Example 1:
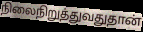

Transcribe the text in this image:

நிலைநிறுத்துவதுதான்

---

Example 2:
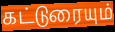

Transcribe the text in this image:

கட்டுரையும்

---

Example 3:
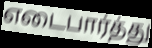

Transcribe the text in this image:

எடைபார்த்து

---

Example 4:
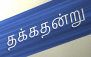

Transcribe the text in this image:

தக்கதன்று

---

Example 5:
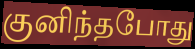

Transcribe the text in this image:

குனிந்தபோது